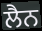
ਲੈਨ